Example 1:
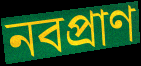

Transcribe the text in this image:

নবপ্রাণ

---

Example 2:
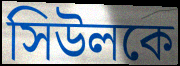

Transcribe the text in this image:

সিউলকে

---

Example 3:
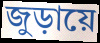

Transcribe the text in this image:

জুড়ায়ে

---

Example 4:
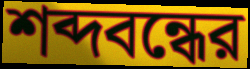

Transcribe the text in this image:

শব্দবন্ধের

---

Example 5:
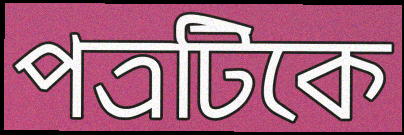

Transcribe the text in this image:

পত্রটিকে